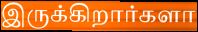
இருக்கிறார்களா